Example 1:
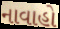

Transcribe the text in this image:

નાવાહો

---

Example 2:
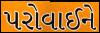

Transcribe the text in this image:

પરોવાઈને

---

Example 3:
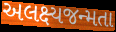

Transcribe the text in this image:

અલક્ષ્યજન્મતા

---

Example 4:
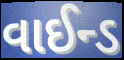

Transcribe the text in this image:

વાઈન્ડ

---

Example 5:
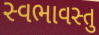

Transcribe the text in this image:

સ્વભાવસ્તુ